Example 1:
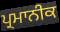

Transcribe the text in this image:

ਪ੍ਰਮਾਨੀਕ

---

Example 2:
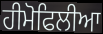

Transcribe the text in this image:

ਹੀਮੋਫਿਲੀਆ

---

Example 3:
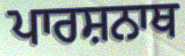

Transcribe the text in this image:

ਪਾਰਸ਼ਨਾਥ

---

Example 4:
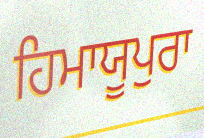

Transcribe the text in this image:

ਹਿਮਾਯੂਪੁਰਾ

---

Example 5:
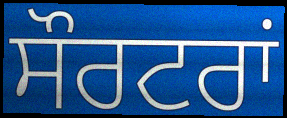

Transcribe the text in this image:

ਸੌਰਟਰਾਂ